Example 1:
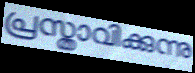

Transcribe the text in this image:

പ്രസ്താവിക്കുന്നു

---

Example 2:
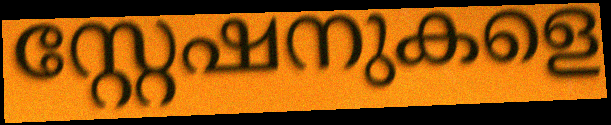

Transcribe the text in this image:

സ്റ്റേഷനുകളെ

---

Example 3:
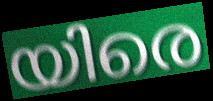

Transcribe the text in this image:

യിരെ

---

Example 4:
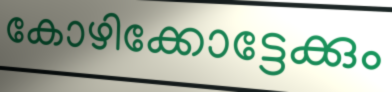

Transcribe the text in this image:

കോഴിക്കോട്ടേക്കും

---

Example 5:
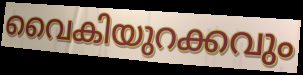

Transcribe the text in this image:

വൈകിയുറക്കവും